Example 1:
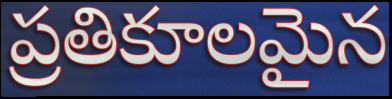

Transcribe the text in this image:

ప్రతికూలమైన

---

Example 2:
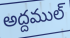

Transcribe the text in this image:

అద్దముల్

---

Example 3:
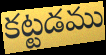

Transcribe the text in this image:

కట్టడము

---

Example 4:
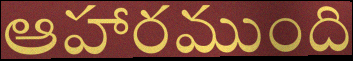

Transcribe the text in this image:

ఆహారముంది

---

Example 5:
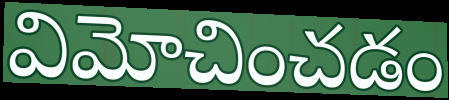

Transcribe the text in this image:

విమోచించడం